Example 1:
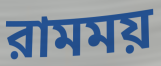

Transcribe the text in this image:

রামময়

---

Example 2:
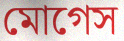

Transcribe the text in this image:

মোগেস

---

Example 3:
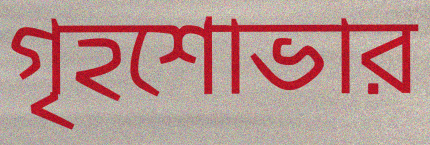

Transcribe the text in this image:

গৃহশোভার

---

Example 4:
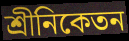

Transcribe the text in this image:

শ্রীনিকেতন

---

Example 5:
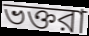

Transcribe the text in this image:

ভক্তরা